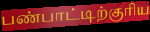
பண்பாட்டிற்குரிய